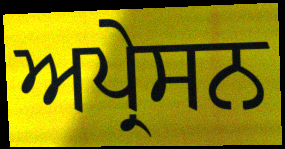
ਅਪ੍ਰੇਸਨ